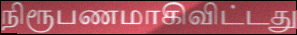
நிரூபணமாகிவிட்டது